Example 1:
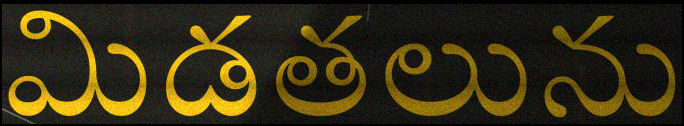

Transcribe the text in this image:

మిడతలును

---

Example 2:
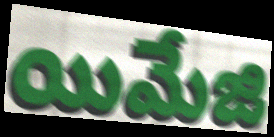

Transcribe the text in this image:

యిమేజి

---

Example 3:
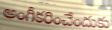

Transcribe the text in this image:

అంగీకరించేందుకు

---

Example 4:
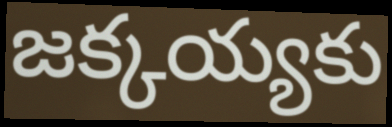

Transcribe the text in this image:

జక్కయ్యకు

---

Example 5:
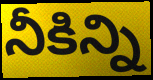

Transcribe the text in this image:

నీకిన్ని